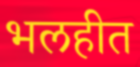
भलहीत